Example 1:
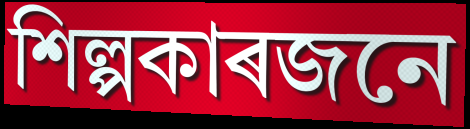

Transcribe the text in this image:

শিল্পকাৰজনে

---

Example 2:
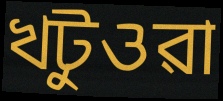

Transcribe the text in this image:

খটুওৱা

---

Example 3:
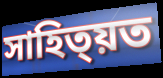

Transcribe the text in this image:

সাহিত্য়ত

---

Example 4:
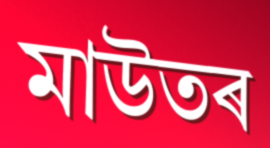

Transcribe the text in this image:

মাউতৰ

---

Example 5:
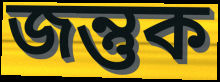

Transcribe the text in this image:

জন্তুক